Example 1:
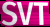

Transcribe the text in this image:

SVT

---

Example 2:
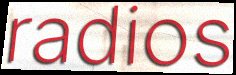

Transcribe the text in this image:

radios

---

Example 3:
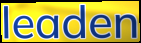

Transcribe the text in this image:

leaden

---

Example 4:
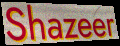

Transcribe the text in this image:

Shazeer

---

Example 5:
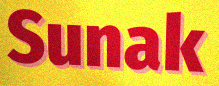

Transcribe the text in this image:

Sunak